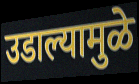
उडाल्यामुळे